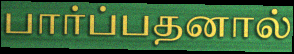
பார்ப்பதனால்